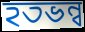
হতভন্ব